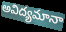
అవిద్యమానా